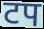
टप